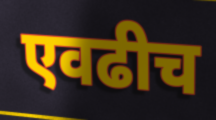
एवढीच